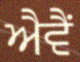
ਐਵੈਂ